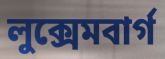
লুক্সেমবার্গ